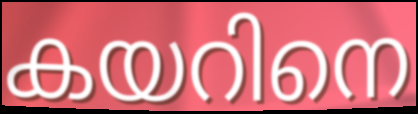
കയറിനെ